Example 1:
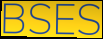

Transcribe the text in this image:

BSES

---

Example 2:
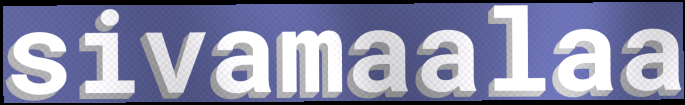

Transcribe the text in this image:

sivamaalaa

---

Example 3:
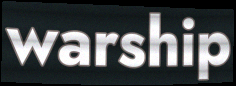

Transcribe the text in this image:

warship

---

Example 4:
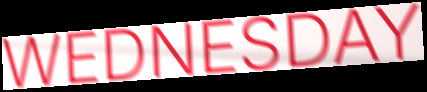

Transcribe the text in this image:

WEDNESDAY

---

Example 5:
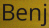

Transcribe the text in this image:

Benj